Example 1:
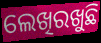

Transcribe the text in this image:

ଲେଖିରଖୁଛି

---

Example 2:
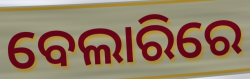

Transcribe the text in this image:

ବେଲାରିରେ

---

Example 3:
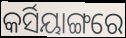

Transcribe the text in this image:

କର୍ସିୟାଙ୍ଗରେ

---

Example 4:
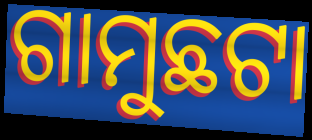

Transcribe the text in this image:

ଗାମୁଛଟା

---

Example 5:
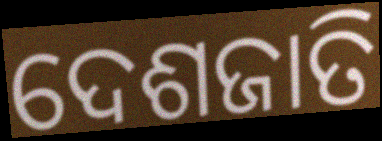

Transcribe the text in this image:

ଦେଶଜାତି